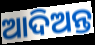
ଆଦିଅନ୍ତ